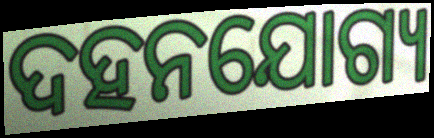
ଦହନଯୋଗ୍ୟ